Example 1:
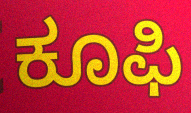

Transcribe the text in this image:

ಕೂಫಿ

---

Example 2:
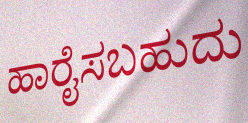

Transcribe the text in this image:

ಹಾರೈಸಬಹುದು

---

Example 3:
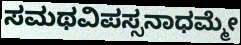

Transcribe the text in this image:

ಸಮಥವಿಪಸ್ಸನಾಧಮ್ಮೇ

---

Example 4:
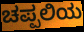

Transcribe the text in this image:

ಚಪ್ಪಲಿಯ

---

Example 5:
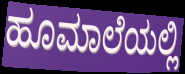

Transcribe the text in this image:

ಹೂಮಾಲೆಯಲ್ಲಿ